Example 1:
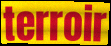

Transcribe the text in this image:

terroir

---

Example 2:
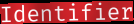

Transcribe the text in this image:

Identifier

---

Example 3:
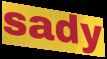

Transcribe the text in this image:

sady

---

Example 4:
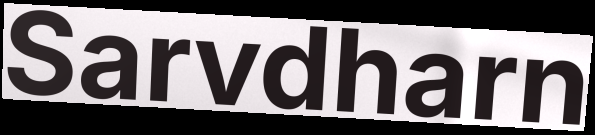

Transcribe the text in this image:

Sarvdharn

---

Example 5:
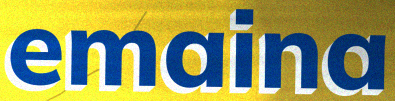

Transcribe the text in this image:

emaina